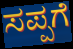
ಸಪ್ಪಗೆ